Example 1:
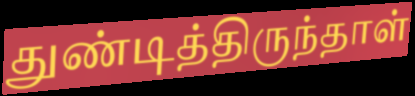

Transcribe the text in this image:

துண்டித்திருந்தாள்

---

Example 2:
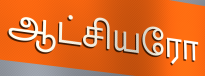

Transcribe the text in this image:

ஆட்சியரோ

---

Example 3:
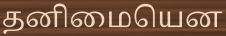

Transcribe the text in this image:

தனிமையென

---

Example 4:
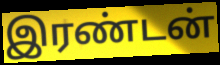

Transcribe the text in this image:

இரண்டன்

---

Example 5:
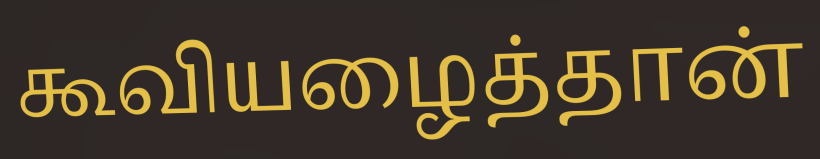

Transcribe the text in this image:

கூவியழைத்தான்